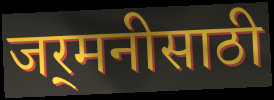
जर्मनीसाठी